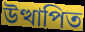
উত্থাপিত